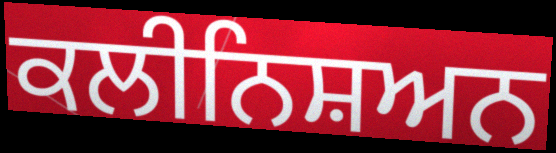
ਕਲੀਨਿਸ਼ਅਨ